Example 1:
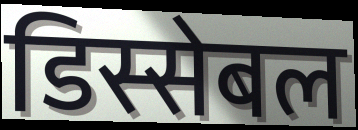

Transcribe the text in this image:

डिस्सेबल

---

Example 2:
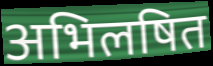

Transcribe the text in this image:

अभिलषित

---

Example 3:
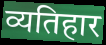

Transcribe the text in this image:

व्यतिहार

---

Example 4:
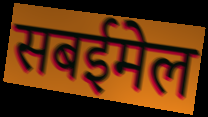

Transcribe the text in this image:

सबईमेल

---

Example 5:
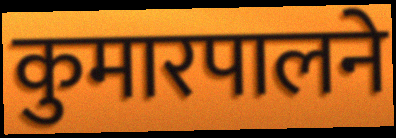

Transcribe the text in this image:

कुमारपालने